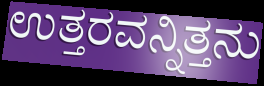
ಉತ್ತರವನ್ನಿತ್ತನು